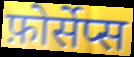
फ़ोर्सेप्स